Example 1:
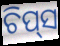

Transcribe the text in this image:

ଚିପ୍‌ସ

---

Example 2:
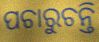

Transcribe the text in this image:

ପଚାରୁଚନ୍ତି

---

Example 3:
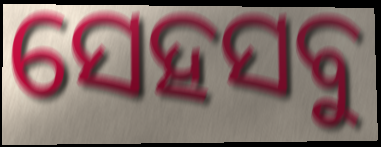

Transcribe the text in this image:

ସେହସବୁ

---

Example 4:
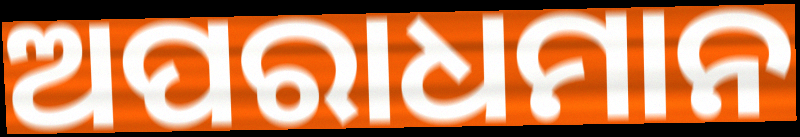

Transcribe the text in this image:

ଅପରାଧମାନ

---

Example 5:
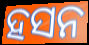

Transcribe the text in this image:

ହସନ